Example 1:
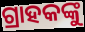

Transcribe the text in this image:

ଗ୍ରାହକଙ୍କୁ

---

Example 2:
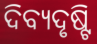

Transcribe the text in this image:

ଦିବ୍ୟଦୃଷ୍ଟି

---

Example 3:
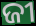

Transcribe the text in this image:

ଜୀ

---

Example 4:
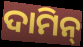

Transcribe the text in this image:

ଦାମିନ୍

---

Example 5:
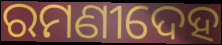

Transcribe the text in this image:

ରମଣୀଦେହ